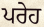
ਪਰੇਹ